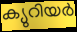
ക്യുറിയർ